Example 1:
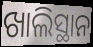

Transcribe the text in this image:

ଖାଲିସ୍ଥାନ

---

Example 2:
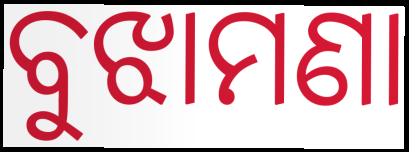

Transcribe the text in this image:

ବୁଝାମଣା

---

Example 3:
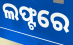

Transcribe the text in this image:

ଲଫ୍ଟରେ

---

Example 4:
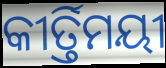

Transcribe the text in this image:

କୀର୍ତ୍ତିମୟୀ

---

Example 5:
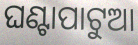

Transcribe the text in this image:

ଘଣ୍ଟାପାଟୁଆ